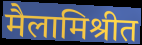
मैलामिश्रीत